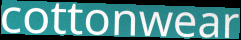
cottonwear